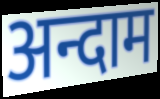
अन्दाम